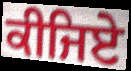
ਕੀਜਿਏ